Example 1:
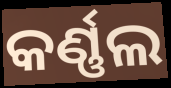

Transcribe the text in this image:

କର୍ଣ୍ଣଲ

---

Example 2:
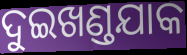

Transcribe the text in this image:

ଦୁଇଖଣ୍ଡଯାକ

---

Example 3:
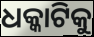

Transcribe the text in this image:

ଧକ୍କାଟିକୁ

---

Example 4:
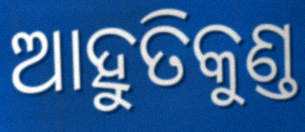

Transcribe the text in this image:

ଆହୁତିକୁଣ୍ଡ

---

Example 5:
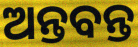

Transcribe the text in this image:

ଅନ୍ତବନ୍ତ